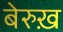
बेरुख़